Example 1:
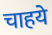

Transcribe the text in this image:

चाहये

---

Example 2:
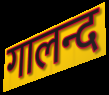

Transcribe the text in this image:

गालन्द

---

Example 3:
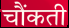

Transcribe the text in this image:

चौंकती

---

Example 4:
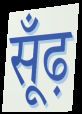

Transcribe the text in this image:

सूँढ़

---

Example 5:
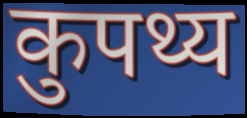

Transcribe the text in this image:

कुपथ्य